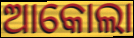
ଆକୋଲା